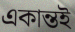
একান্তই